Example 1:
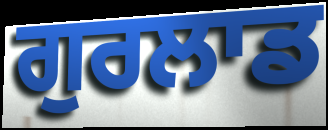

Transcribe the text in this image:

ਗੁਰਲਾਡ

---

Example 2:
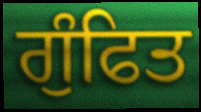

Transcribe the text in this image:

ਗੁੰਫਿਤ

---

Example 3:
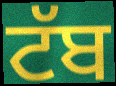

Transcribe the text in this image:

ਟੱਬ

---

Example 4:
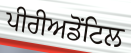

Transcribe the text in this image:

ਪੀਰੀਅਡੋਂਟਿਲ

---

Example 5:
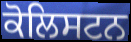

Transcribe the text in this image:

ਕੋਲਿਸਟਨ